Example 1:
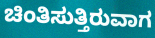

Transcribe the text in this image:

ಚಿಂತಿಸುತ್ತಿರುವಾಗ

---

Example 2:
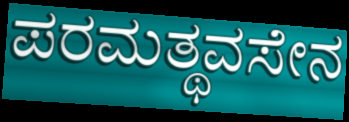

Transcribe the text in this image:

ಪರಮತ್ಥವಸೇನ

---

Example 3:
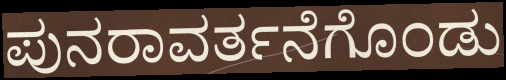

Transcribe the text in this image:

ಪುನರಾವರ್ತನೆಗೊಂಡು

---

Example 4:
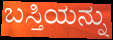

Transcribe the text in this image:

ಬಸ್ತಿಯನ್ನು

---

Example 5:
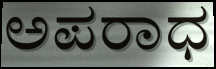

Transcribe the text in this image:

ಅಪರಾಧ